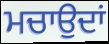
ਮਚਾਉਦਾਂ